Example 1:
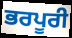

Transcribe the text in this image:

ਭਰਪੂਰੀ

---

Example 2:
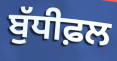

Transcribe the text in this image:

ਬੁੱਧੀਫ਼ਲ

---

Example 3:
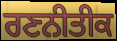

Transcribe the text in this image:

ਰਣਨੀਤੀਕ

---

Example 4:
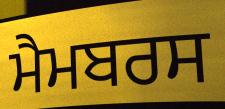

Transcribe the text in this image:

ਮੈਮਬਰਸ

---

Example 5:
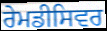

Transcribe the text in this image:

ਰੇਮਡੀਸਿਵਰ